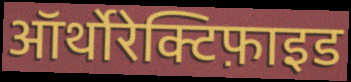
ऑर्थोरेक्टिफ़ाइड